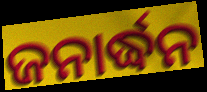
ଜନାର୍ଦ୍ଧନ